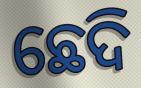
ଛେଦି